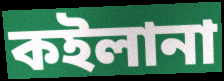
কইলানা